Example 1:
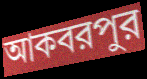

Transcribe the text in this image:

আকবরপুর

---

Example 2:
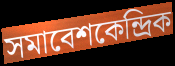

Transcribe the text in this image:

সমাবেশকেন্দ্রিক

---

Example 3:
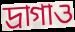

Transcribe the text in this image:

দ্রাগাও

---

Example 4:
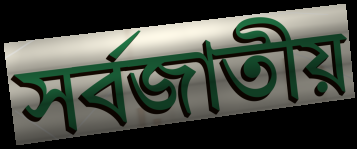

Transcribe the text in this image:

সর্বজাতীয়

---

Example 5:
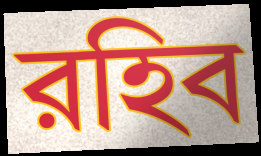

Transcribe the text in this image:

রহিব